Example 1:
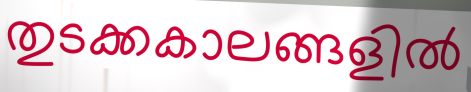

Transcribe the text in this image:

തുടക്കകാലങ്ങളിൽ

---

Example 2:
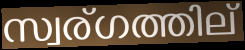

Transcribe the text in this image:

സ്വര്ഗത്തില്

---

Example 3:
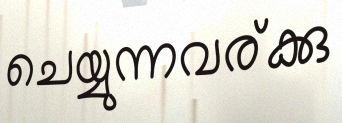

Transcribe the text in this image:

ചെയ്യുന്നവര്ക്കു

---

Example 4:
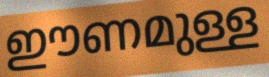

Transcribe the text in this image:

ഈണമുള്ള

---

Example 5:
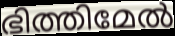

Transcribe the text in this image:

ഭിത്തിമേൽ